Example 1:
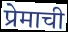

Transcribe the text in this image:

प्रेमाची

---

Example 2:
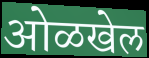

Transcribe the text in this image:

ओळखेल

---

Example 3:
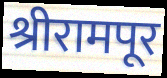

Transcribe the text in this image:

श्रीरामपूर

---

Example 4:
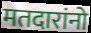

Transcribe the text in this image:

मतदारांनो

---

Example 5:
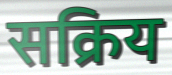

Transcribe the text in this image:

सक्रिय